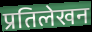
प्रतिलेखन